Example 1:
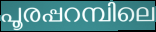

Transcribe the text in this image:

പൂരപ്പറമ്പിലെ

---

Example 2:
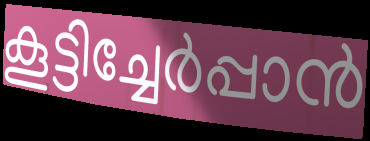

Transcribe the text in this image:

കൂട്ടിച്ചേർപ്പാൻ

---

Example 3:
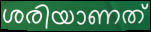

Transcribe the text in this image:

ശരിയാണത്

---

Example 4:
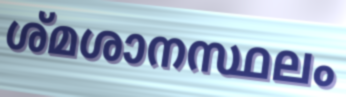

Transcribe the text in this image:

ശ്മശാനസ്ഥലം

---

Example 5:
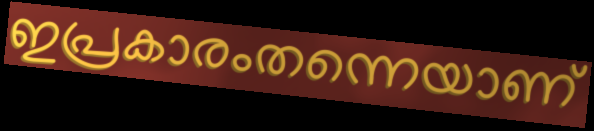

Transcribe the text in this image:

ഇപ്രകാരംതന്നെയാണ്